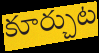
కూర్చుట